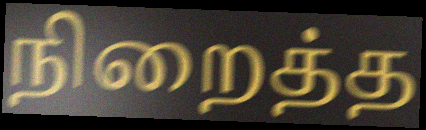
நிறைத்த